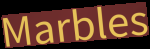
Marbles